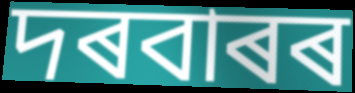
দৰবাৰৰ